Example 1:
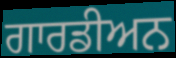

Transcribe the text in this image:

ਗਾਰਡੀਅਨ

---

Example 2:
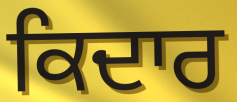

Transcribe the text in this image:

ਕਿਦਾਰ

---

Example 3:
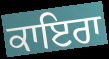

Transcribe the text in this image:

ਕਾਇਰਾ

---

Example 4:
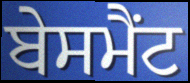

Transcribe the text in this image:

ਬੇਸਮੈਂਟ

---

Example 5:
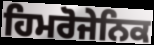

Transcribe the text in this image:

ਹਿਮਰੋਜੇਨਿਕ